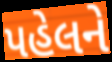
પહેલને